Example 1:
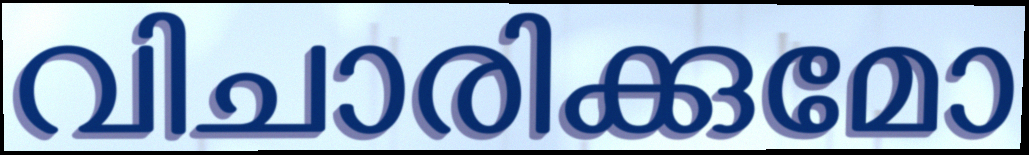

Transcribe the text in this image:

വിചാരിക്കുമോ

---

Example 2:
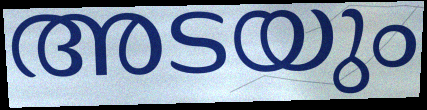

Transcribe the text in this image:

അടയും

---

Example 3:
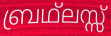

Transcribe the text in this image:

ബ്രഥ്ലസ്സ്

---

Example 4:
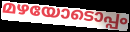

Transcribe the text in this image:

മഴയോടൊപ്പം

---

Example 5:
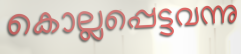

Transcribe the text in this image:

കൊല്ലപ്പെട്ടവന്നു